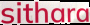
sithara